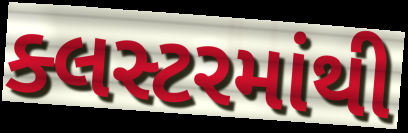
ક્લસ્ટરમાંથી